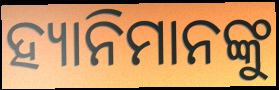
ହ୍ୟାନିମାନଙ୍କୁ